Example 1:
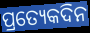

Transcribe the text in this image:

ପ୍ରତ୍ୟେକଦିନ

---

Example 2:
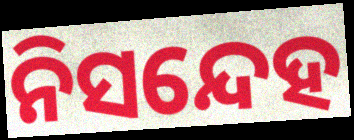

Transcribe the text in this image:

ନିସନ୍ଦେହ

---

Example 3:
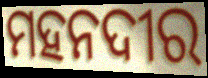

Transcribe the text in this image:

ମହନଦୀର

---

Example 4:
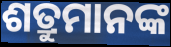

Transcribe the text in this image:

ଶତ୍ରୁମାନଙ୍କ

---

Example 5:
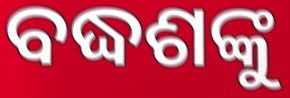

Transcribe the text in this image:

ବଦ୍ଧଶଙ୍କୁ